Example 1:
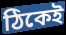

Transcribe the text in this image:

ঠিকেই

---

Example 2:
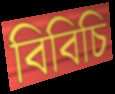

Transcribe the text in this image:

বিবিচি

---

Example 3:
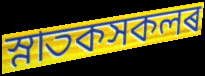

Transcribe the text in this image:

স্নাতকসকলৰ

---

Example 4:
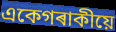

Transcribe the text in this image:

একেগৰাকীয়ে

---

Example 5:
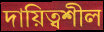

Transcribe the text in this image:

দায়িত্বশীল